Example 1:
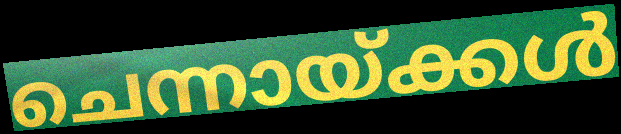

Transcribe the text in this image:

ചെന്നായ്ക്കൾ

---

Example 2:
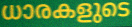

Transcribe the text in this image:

ധാരകളുടെ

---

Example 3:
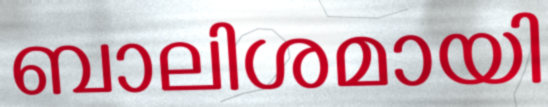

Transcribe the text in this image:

ബാലിശമായി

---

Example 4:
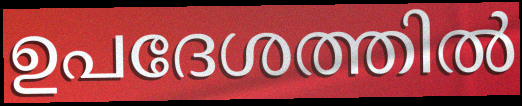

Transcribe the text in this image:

ഉപദേശത്തിൽ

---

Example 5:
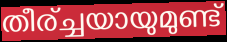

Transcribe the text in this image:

തീര്ച്ചയായുമുണ്ട്